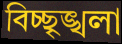
বিচ্ছৃঙ্খলা